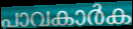
പാവകാർക